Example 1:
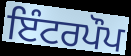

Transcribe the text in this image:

ਇੰਟਰਪੌਪ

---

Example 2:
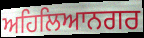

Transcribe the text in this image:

ਅਹਿਲਿਆਨਗਰ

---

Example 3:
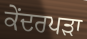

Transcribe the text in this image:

ਕੇਂਦਰਪੜਾ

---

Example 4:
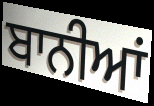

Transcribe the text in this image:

ਬਾਨੀਆਂ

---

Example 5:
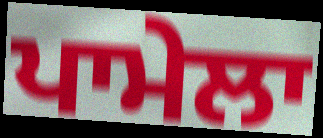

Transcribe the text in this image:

ਪਾਮੇਲਾ